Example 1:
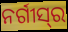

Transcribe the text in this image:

ନର୍ଗୀସ୍‍ର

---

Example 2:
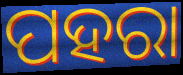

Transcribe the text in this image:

ପହରା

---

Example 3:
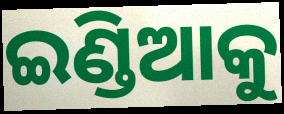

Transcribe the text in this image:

ଇଣ୍ଡିଆକୁ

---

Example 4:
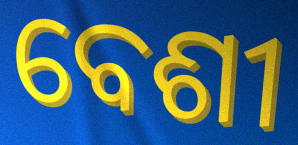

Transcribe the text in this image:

ବେଶୀ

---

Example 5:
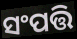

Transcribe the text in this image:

ସଂପତ୍ତି